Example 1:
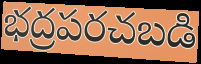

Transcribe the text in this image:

భద్రపరచబడి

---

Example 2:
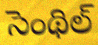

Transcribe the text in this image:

సెంథిల్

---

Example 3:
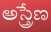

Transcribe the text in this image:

అస్త్రేణ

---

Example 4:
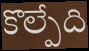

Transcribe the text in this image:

కొల్పేది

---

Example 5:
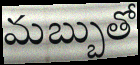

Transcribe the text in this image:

మబ్బుతో